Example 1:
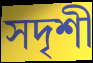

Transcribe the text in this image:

সদৃশী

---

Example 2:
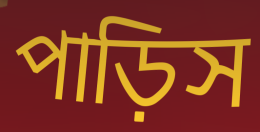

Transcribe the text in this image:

পাড়িস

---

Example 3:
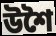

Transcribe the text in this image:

উশৈ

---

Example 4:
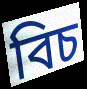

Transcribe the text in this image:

বিচ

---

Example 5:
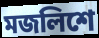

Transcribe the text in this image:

মজলিশে